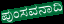
ಪುಂಸವನಾದಿ